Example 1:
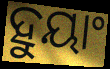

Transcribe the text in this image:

ହୁୟାଂ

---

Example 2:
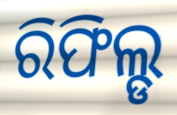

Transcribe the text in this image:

ରିଫିଲ୍ଡ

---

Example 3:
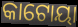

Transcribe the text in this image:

କାଟୋୟା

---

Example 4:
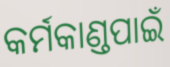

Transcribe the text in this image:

କର୍ମକାଣ୍ଡପାଇଁ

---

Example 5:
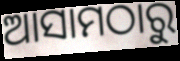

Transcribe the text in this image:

ଆସାମଠାରୁ